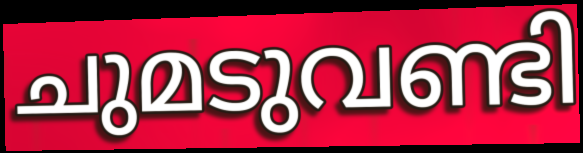
ചുമടുവണ്ടി